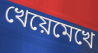
খেয়েমেখে